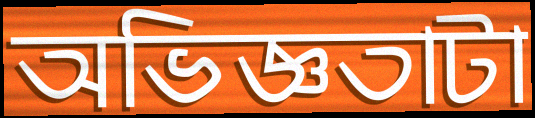
অভিজ্ঞতাটা